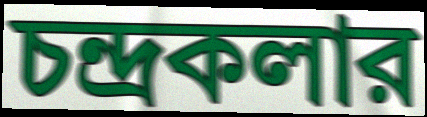
চন্দ্রকলার